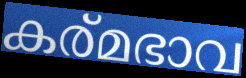
കര്മഭാവ